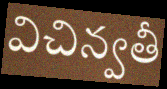
విచిన్వతీ